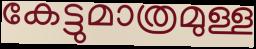
കേട്ടുമാത്രമുള്ള